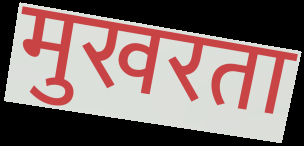
मुखरता